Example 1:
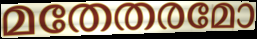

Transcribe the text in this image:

മതേതരമോ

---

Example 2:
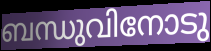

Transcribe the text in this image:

ബന്ധുവിനോടു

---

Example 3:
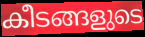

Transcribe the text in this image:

കീടങ്ങളുടെ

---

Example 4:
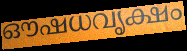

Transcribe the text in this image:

ഔഷധവൃക്ഷം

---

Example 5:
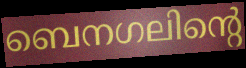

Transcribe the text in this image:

ബെനഗലിന്റെ